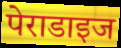
पेराडाइज